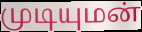
முடியுமன்